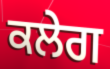
ਕਲੇਗ